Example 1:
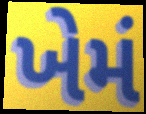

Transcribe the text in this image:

ખેમં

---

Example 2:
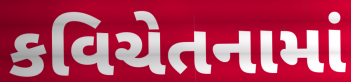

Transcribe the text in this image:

કવિચેતનામાં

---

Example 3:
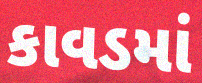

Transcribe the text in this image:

કાવડમાં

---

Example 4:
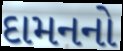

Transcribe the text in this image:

દામનનો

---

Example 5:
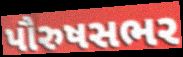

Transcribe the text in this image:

પૌરુષસભર